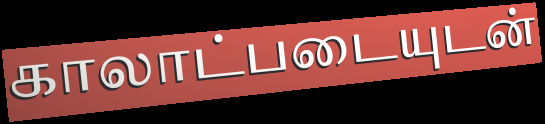
காலாட்படையுடன்